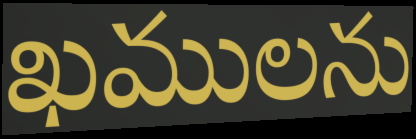
ఖములను